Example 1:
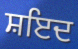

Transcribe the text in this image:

ਸ਼ਇਦ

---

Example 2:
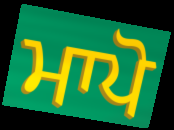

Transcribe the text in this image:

ਮਾਪੋ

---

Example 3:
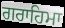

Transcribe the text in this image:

ਗਰਾਹਿਮਾ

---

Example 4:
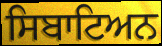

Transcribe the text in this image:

ਸਿਬਾਟਿਅਨ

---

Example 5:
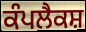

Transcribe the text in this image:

ਕੰਪਲੈਕਸ਼